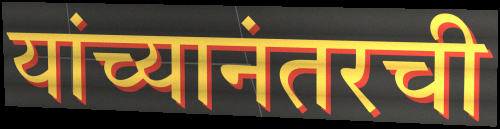
यांच्यानंतरची